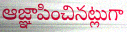
ఆజ్ఞాపించినట్లుగా